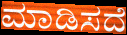
ಮಾಡಿಸದೆ